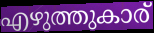
എഴുത്തുകാര്